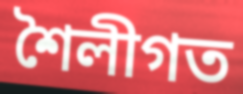
শৈলীগত